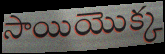
సాయియొక్క